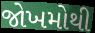
જોખમોથી